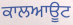
ਕਾਲਆਊਟ